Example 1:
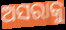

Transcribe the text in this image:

ଅସରାକୁ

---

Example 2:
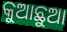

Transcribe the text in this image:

କୁଆଛୁଆ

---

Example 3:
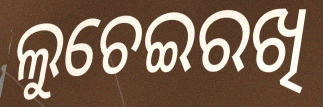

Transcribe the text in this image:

ଲୁଚେଇରଖି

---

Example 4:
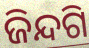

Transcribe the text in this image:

ଜିନ୍ଦଗି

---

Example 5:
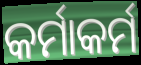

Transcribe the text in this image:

କର୍ମାକର୍ମ